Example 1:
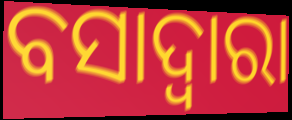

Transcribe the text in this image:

ବସାଦ୍ୱାରା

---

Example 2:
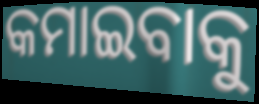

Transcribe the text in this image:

କମାଇବାକୁ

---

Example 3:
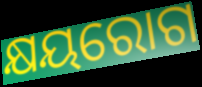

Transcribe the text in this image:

କ୍ଷୟରୋଗ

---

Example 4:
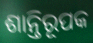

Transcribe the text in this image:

ଶାନ୍ତିରୂପକ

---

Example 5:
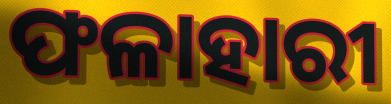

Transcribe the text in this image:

ଫଳାହାରୀ